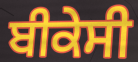
ਬੀਕੇਸੀ